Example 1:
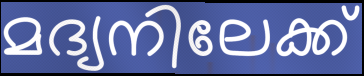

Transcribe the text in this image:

മദ്യനിലേക്ക്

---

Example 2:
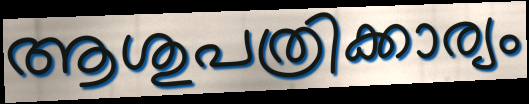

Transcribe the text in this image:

ആശുപത്രിക്കാര്യം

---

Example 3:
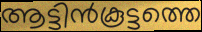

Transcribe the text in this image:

ആട്ടിൻകൂട്ടത്തെ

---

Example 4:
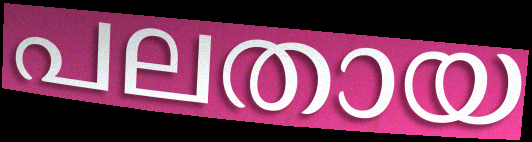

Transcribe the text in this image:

പലതായ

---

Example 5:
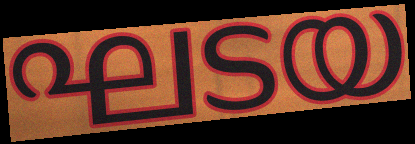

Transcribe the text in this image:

ഘടയ